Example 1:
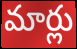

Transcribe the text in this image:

మార్లు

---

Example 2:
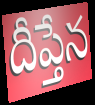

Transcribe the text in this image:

దీప్తేన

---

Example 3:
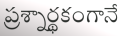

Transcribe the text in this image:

ప్రశ్నార్థకంగానే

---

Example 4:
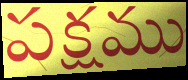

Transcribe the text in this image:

పక్షము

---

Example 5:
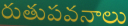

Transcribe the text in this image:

రుతుపవనాలు